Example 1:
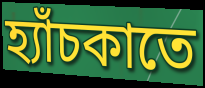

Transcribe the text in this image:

হ্যাঁচকাতে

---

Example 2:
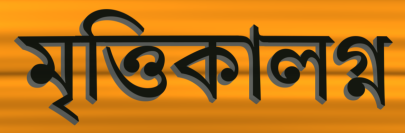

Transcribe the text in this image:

মৃত্তিকালগ্ন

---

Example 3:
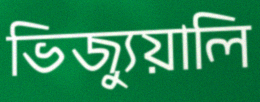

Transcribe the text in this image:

ভিজ্যুয়ালি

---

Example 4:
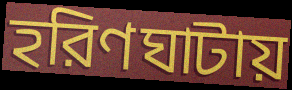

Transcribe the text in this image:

হরিণঘাটায়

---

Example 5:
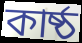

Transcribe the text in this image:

কাষ্ঠ